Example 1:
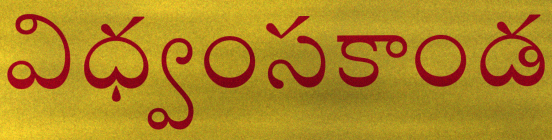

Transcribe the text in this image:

విధ్వంసకాండ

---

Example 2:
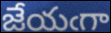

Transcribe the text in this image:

జేయఁగా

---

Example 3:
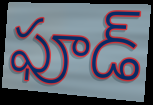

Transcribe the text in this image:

ఫూడ్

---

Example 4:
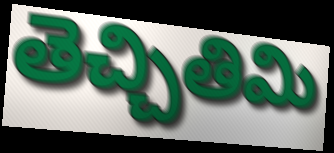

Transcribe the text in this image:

తెచ్చితిమి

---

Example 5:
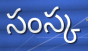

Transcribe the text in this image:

సంస్క